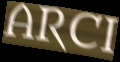
ARCI